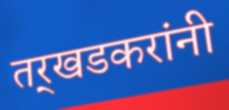
तर्खडकरांनी